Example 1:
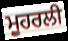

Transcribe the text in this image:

ਮੂਹਰਲੀ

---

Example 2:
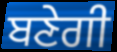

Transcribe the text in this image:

ਬਣੇਗੀ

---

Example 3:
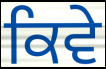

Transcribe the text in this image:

ਕਿਵੇ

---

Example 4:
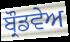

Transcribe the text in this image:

ਬ੍ਰੌਡਵੇਅ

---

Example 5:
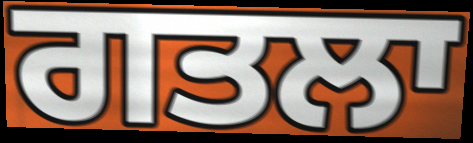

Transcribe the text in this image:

ਗਤਲਾ